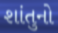
શાંતુનો